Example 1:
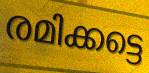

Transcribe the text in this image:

രമിക്കട്ടെ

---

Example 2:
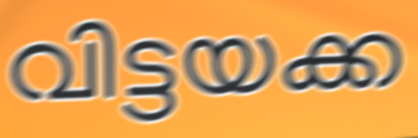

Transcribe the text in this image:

വിട്ടയക്ക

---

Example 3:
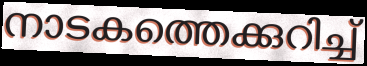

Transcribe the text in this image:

നാടകത്തെക്കുറിച്ച്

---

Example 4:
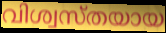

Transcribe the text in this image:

വിശ്വസ്തയായ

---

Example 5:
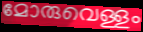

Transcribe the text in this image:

മോരുവെള്ളം